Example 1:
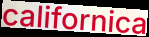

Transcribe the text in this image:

californica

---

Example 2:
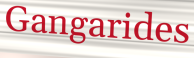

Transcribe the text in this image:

Gangarides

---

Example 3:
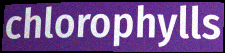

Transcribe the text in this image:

chlorophylls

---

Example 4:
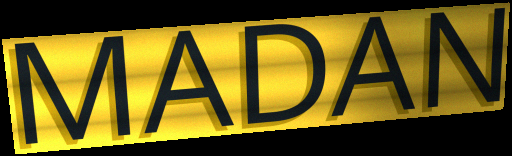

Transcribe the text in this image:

MADAN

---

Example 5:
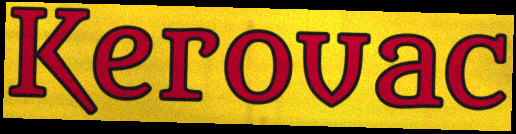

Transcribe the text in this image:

Kerouac